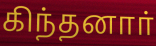
கிந்தனார்